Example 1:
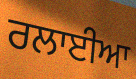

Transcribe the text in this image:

ਰਲਾਈਆ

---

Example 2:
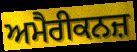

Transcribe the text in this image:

ਅਮੈਰੀਕਨਜ਼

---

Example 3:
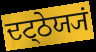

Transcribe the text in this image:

ਦਟ੍ਠੇਯ੍ਯਂ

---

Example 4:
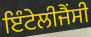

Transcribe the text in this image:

ਇੰਟੇਲੀਜੈਂਸੀ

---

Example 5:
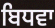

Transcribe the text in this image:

ਬਿਧਵਾ